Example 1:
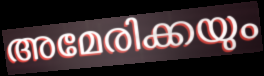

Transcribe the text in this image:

അമേരിക്കയും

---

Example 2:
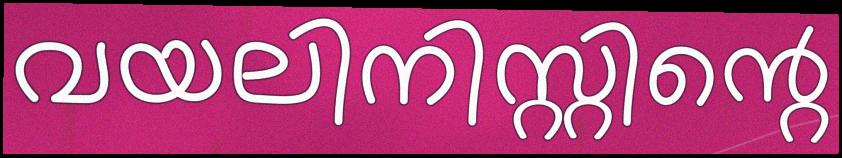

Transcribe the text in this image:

വയലിനിസ്റ്റിന്റെ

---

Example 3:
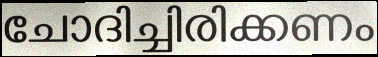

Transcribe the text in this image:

ചോദിച്ചിരിക്കണം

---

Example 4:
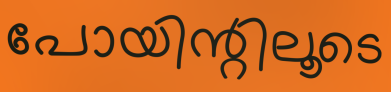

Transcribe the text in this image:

പോയിന്റിലൂടെ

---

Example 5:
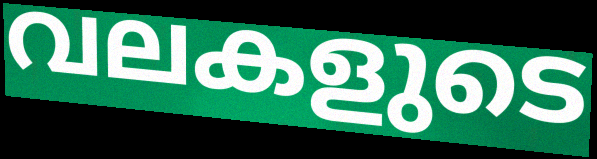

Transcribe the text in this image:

വലകളുടെ